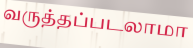
வருத்தப்படலாமா